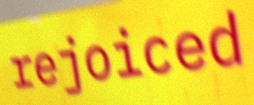
rejoiced